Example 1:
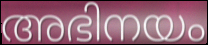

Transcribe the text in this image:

അഭിനയം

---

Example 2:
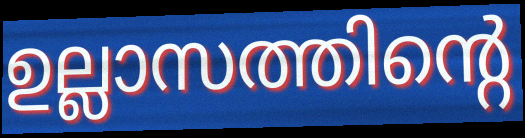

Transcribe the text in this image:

ഉല്ലാസത്തിന്റെ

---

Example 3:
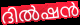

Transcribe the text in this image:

ദിൽഷൻ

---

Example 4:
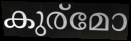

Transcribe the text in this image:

കുര്മോ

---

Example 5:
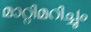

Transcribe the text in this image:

മാറ്റിമറിച്ചും